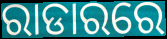
ରାଡାରରେ